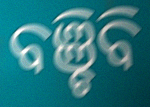
ବଞ୍ଚିବି